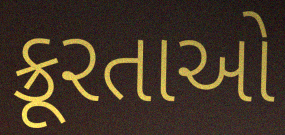
ક્રૂરતાઓ